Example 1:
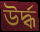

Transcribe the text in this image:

উৰ্দ্ধ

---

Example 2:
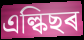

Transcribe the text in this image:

এল্কিছৰ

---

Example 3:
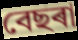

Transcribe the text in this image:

বেছৰা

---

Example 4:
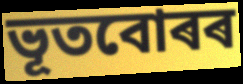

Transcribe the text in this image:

ভূতবোৰৰ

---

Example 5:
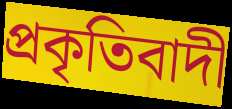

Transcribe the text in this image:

প্ৰকৃতিবাদী